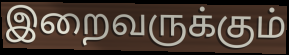
இறைவருக்கும்